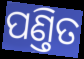
ପଣ୍ତିତ